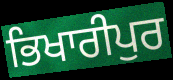
ਭਿਖਾਰੀਪੁਰ